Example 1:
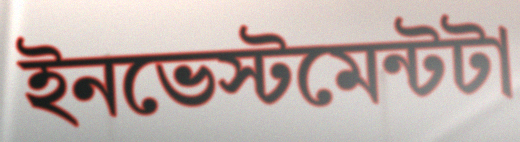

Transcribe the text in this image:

ইনভেস্টমেন্টটা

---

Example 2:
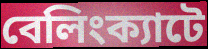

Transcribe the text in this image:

বেলিংক্যাটে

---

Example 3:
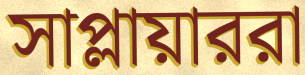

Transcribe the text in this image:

সাপ্লায়াররা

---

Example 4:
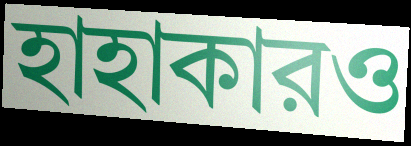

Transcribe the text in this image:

হাহাকারও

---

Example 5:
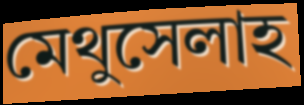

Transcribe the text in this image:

মেথুসেলাহ